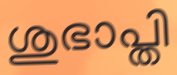
ശുഭാപ്തി